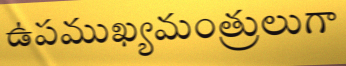
ఉపముఖ్యమంత్రులుగా